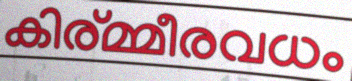
കിര്മ്മീരവധം